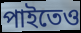
পাইতেও